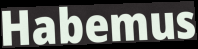
Habemus